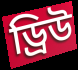
ড্রিউ